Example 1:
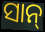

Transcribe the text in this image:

ସାନ୍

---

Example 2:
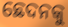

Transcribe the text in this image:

ଛେଦନକୁ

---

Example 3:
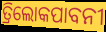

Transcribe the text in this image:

ତ୍ରିଲୋକପାବନୀ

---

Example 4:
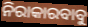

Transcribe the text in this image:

ନିରାକାରବାବୁ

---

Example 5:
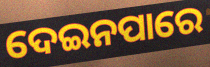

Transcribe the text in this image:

ଦେଇନପାରେ